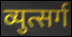
व्युत्सर्ग